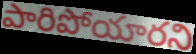
పారిపోయారని